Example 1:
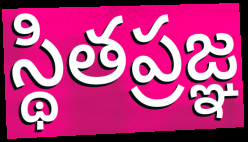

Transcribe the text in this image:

స్థితప్రజ్ఞ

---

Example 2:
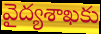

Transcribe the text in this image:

వైద్యశాఖకు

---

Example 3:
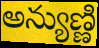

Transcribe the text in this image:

అన్యుణ్ణి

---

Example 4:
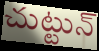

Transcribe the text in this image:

చుట్టున్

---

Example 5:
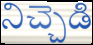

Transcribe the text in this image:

నిచ్చెడి